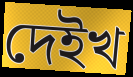
দেইখ